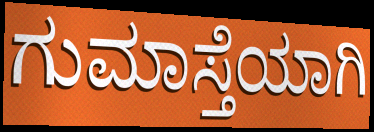
ಗುಮಾಸ್ತೆಯಾಗಿ